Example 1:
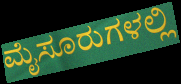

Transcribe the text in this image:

ಮೈಸೂರುಗಳಲ್ಲಿ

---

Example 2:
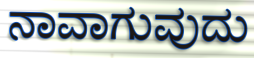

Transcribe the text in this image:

ನಾವಾಗುವುದು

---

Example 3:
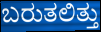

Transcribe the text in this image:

ಬರುತಲಿತ್ತು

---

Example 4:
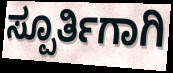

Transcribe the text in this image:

ಸ್ಪೂರ್ತಿಗಾಗಿ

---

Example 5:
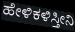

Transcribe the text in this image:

ಹೇಳಿಕಳಿಸ್ತೀನಿ